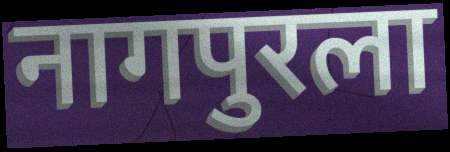
नागपुरला